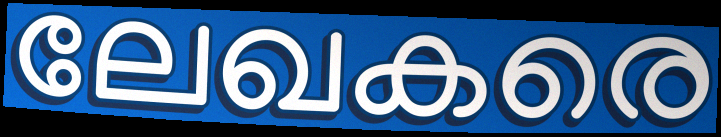
ലേഖകരെ